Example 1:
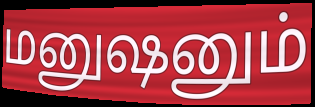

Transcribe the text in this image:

மனுஷனும்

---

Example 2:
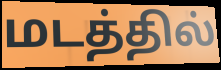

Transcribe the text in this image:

மடத்தில்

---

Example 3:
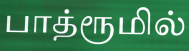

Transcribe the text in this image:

பாத்ரூமில்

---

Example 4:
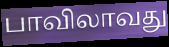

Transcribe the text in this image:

பாவிலாவது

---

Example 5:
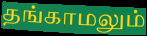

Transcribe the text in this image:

தங்காமலும்